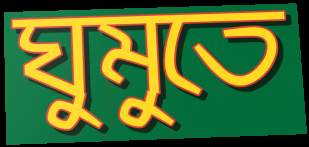
ঘুমুতে